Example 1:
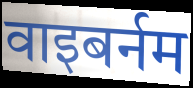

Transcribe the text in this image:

वाइबर्नम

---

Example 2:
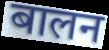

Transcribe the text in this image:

बालन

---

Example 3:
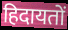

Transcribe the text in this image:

हिदायतों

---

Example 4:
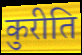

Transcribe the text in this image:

कुरीति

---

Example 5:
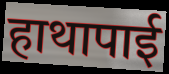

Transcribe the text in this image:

हाथापाई